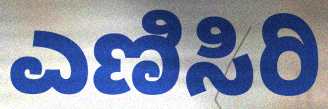
ಎಣಿಸಿರಿ